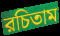
রচিতাম